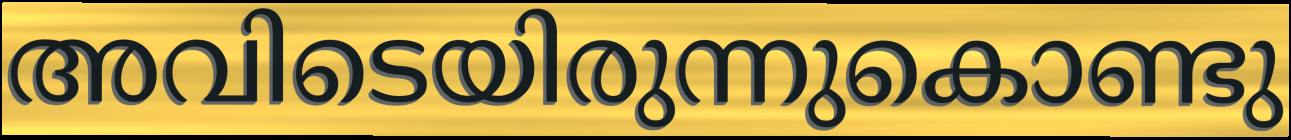
അവിടെയിരുന്നുകൊണ്ടു